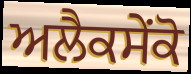
ਅਲੈਕਸੇਂਕੋ